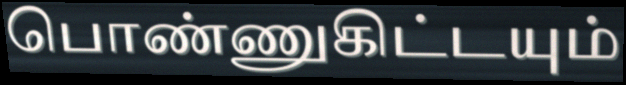
பொண்ணுகிட்டயும்